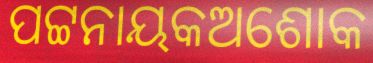
ପଟ୍ଟନାୟକଅଶୋକ